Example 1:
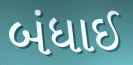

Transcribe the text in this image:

બંધાઈ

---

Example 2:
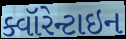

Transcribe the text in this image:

ક્વૉરેન્ટાઇન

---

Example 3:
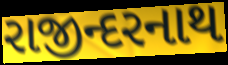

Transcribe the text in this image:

રાજીન્દરનાથ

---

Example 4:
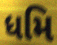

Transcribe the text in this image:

ધમિ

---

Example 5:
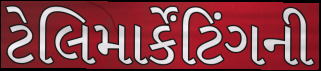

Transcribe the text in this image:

ટેલિમાર્કેંટિંગની